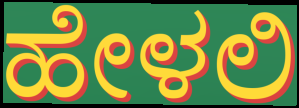
ಹೇಳಲಿ